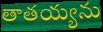
తాతయ్యను